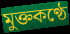
মুক্তকণ্ঠে